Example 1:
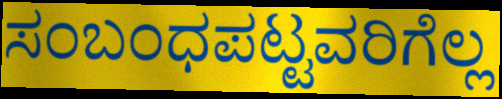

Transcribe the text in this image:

ಸಂಬಂಧಪಟ್ಟವರಿಗೆಲ್ಲ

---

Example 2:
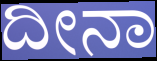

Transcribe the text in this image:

ದೀನಾ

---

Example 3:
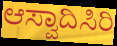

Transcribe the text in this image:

ಆಸ್ವಾದಿಸಿರಿ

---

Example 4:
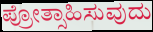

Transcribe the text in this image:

ಪ್ರೋತ್ಸಾಹಿಸುವುದು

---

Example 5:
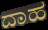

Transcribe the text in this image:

ದಾಹ